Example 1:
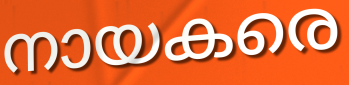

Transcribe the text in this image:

നായകരെ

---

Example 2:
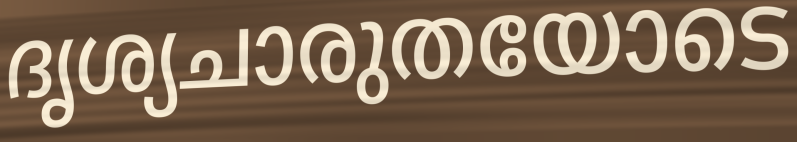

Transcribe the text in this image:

ദൃശ്യചാരുതയോടെ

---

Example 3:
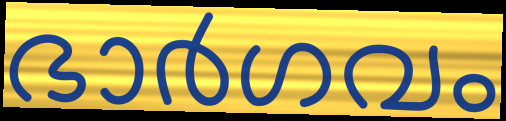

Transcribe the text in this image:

ഭാർഗവം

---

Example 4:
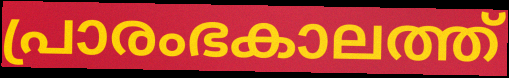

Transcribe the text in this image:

പ്രാരംഭകാലത്ത്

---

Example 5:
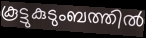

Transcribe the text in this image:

കൂട്ടുകുടുംബത്തിൽ